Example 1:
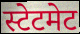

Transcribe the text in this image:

स्टेटमेट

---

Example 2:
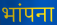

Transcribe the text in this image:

भांपना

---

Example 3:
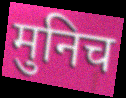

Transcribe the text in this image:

मुनिच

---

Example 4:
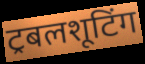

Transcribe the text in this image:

ट्रबलशूटिंग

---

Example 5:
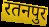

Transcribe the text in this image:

रतनपुर